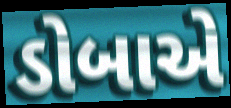
ડોબાએ